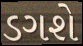
ડગશે